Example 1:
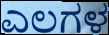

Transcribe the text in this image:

ಎಲಗಳ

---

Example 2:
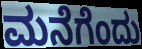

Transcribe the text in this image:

ಮನೆಗೆಂದು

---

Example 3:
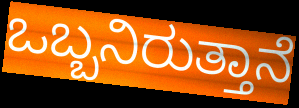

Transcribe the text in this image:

ಒಬ್ಬನಿರುತ್ತಾನೆ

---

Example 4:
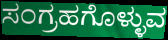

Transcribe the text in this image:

ಸಂಗ್ರಹಗೊಳ್ಳುವ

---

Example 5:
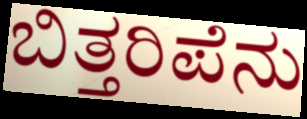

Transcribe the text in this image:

ಬಿತ್ತರಿಪೆನು